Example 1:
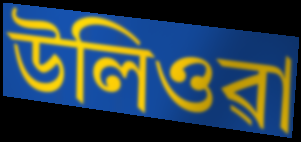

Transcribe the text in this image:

উলিওৱা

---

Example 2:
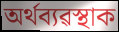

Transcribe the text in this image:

অৰ্থব্যৱস্থাক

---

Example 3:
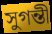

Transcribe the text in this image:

সুগন্তী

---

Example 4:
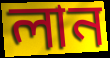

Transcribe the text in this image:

লান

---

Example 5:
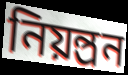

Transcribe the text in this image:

নিয়ন্ত্ৰন